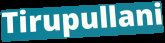
Tirupullani